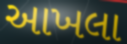
આખલા